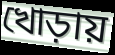
খোড়ায়